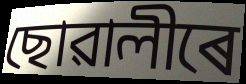
ছোৱালীৰে